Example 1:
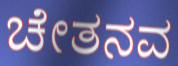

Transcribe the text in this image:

ಚೇತನವ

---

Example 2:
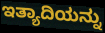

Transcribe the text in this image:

ಇತ್ಯಾದಿಯನ್ನು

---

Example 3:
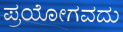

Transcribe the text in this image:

ಪ್ರಯೋಗವದು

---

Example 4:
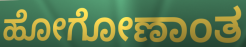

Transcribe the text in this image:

ಹೋಗೋಣಾಂತ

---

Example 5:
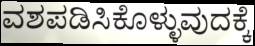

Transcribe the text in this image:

ವಶಪಡಿಸಿಕೊಳ್ಳುವುದಕ್ಕೆ